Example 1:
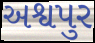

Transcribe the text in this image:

અશ્વપુર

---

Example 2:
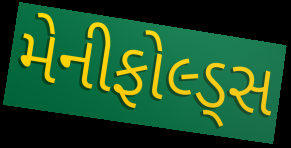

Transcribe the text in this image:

મેનીફોલ્ડ્સ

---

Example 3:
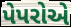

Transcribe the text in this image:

પેપરોએ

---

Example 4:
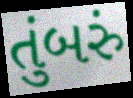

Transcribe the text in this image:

તુંબરું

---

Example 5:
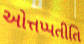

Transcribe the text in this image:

ઓત્તપ્પતીતિ